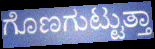
ಗೊಣಗುಟ್ಟುತ್ತಾ